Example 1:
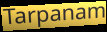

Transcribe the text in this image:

Tarpanam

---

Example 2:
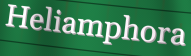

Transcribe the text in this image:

Heliamphora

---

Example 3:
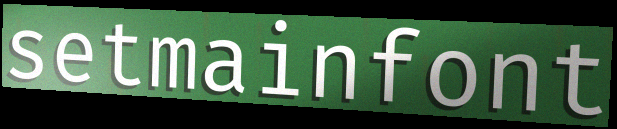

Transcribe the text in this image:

setmainfont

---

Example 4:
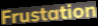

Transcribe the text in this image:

Frustation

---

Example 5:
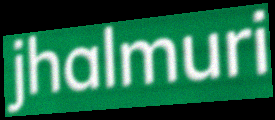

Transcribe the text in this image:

jhalmuri